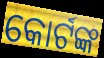
କୋର୍ଟଙ୍କ